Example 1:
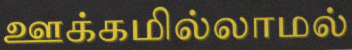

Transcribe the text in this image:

ஊக்கமில்லாமல்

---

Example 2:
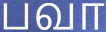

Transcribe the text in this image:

பவா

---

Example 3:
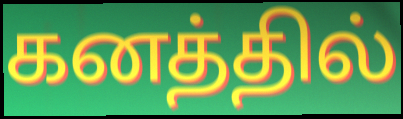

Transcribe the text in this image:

கனத்தில்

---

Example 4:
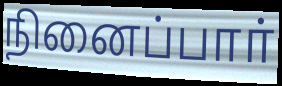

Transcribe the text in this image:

நினைப்பார்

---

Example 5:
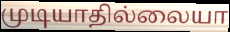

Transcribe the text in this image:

முடியாதில்லையா